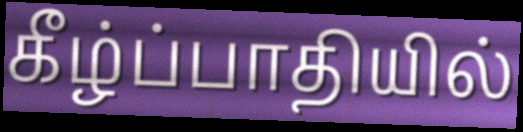
கீழ்ப்பாதியில்